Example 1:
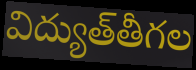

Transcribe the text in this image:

విద్యుత్‌తీగల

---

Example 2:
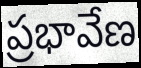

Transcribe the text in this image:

ప్రభావేణ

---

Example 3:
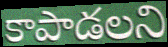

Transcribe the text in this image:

కాపాడలని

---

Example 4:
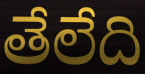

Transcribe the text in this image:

తేలేది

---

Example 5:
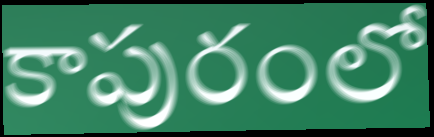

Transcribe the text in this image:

కాపురంలో